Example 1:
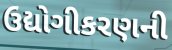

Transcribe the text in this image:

ઉદ્યોગીકરણની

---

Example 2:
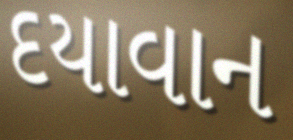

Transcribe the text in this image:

દયાવાન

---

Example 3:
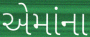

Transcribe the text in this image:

એમાંના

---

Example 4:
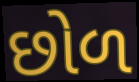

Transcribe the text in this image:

છોળ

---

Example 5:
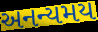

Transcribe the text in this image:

અનન્યમય